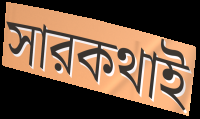
সারকথাই